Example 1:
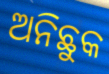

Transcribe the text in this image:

ଅନିଛୁକ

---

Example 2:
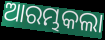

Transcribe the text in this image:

ଆରମ୍ଭକଲା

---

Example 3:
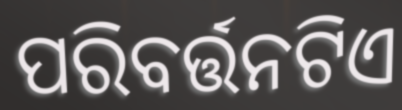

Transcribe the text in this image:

ପରିବର୍ତ୍ତନଟିଏ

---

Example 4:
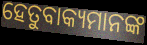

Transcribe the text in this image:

ହେତୁବାକ୍ୟମାନଙ୍କ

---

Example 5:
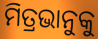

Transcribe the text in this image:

ମିତ୍ରଭାନୁକୁ